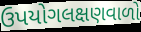
ઉપયોગલક્ષણવાળો